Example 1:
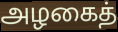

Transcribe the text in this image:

அழகைத்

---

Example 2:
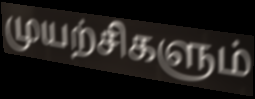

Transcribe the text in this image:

முயற்சிகளும்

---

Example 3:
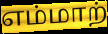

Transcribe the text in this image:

எம்மாற்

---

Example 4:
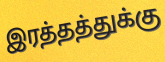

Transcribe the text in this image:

இரத்தத்துக்கு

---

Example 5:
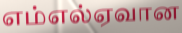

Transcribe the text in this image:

எம்எல்ஏவான